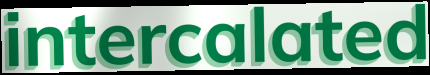
intercalated